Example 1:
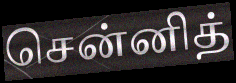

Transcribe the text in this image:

சென்னித்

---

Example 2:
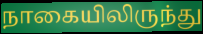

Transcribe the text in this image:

நாகையிலிருந்து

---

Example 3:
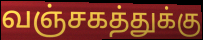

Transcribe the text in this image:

வஞ்சகத்துக்கு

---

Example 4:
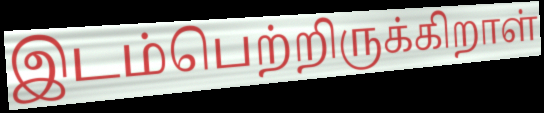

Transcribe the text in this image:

இடம்பெற்றிருக்கிறாள்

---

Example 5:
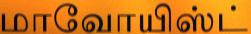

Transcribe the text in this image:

மாவோயிஸ்ட்